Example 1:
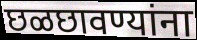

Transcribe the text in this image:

छळछावण्यांना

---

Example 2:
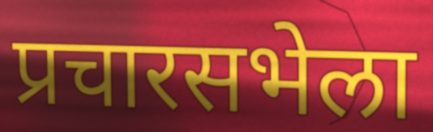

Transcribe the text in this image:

प्रचारसभेला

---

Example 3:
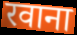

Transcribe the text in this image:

रवाना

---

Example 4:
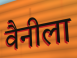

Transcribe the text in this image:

वैनीला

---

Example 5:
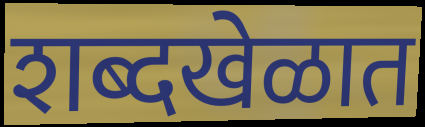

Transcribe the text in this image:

शब्दखेळात